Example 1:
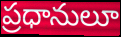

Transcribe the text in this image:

ప్రధానులూ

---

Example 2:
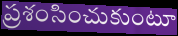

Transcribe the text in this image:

ప్రశంసించుకుంటూ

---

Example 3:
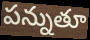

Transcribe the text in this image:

పన్నుతూ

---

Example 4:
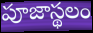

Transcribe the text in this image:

పూజాస్థలం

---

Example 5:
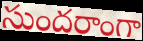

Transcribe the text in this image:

సుందరాంగా